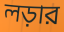
লড়ার